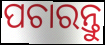
ପଚାରନ୍ତୁ